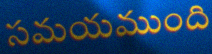
సమయముంది